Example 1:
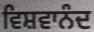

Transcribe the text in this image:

ਵਿਸ਼ਵਾਨੰਦ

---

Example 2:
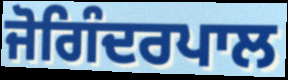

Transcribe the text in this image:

ਜੋਗਿੰਦਰਪਾਲ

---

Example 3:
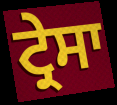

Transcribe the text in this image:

ਟ੍ਰੇਸਾ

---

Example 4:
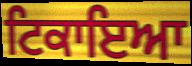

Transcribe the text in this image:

ਟਿਕਾਇਆ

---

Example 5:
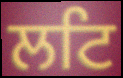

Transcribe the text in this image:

ਲਟਿ